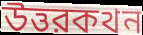
উত্তরকথন